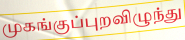
முகங்குப்புறவிழுந்து